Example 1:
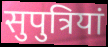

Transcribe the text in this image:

सुपुत्रियां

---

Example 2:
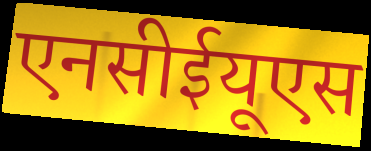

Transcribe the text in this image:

एनसीईयूएस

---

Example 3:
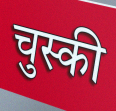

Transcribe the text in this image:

चुस्की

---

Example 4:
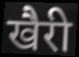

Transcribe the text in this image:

खैरी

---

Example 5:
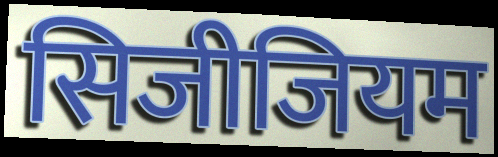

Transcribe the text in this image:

सिजीजियम